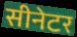
सीनेटर